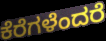
ಕೆರೆಗಳೆಂದರೆ